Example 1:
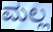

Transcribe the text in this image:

ಮಲ್ಲ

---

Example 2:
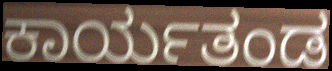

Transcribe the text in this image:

ಕಾರ್ಯತಂಡ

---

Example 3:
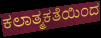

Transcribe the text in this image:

ಕಲಾತ್ಮಕತೆಯಿಂದ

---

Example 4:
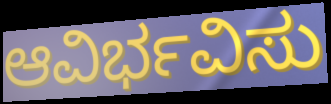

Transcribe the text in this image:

ಆವಿರ್ಭವಿಸು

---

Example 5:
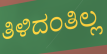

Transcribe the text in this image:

ತಿಳಿದಂತಿಲ್ಲ